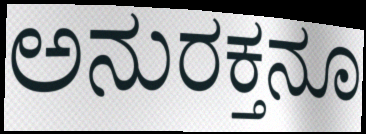
ಅನುರಕ್ತನೂ